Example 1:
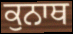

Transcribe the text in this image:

ਕੁਨਾਥ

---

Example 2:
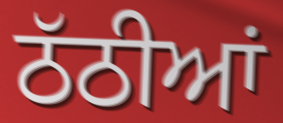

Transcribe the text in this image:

ਠੱਠੀਆਂ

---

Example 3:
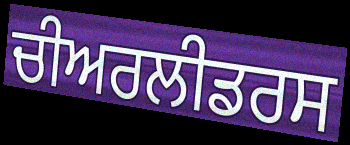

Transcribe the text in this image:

ਚੀਅਰਲੀਡਰਸ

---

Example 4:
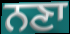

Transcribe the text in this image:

ਨਣਾ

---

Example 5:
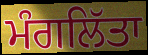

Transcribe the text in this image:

ਮੰਗਲਿੱਤਾ